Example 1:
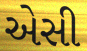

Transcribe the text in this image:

એસી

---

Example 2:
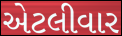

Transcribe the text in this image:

એટલીવાર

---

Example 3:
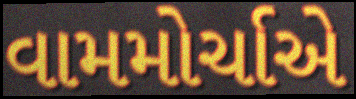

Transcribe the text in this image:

વામમોર્ચાએ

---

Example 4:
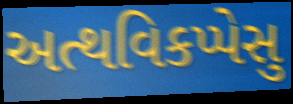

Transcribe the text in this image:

અત્થવિકપ્પેસુ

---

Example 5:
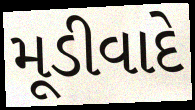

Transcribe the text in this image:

મૂડીવાદે